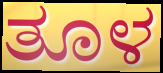
ತೂಳ